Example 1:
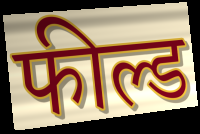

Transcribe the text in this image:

फील्ड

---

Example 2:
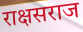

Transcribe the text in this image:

राक्षसराज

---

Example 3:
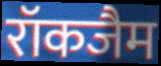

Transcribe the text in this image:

रॉकजैम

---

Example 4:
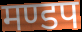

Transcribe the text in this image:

मण्‍डप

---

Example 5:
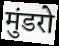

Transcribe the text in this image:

मुंडरो